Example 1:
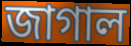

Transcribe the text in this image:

জাগাল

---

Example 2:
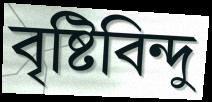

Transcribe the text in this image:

বৃষ্টিবিন্দু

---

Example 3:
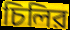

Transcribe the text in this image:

চিলির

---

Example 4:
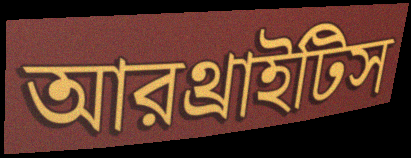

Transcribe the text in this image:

আরথ্রাইটিস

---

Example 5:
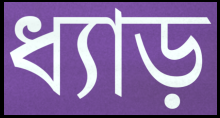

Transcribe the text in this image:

ধ্যাড়